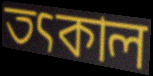
তৎকাল